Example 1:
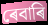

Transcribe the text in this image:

ৰেবাৰি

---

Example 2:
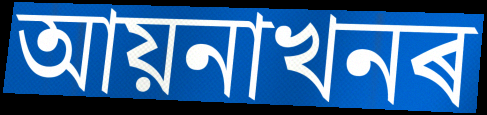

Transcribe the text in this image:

আয়নাখনৰ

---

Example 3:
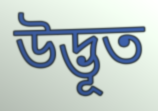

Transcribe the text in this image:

উদ্ভূত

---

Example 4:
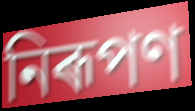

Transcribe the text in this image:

নিৰূপণ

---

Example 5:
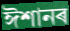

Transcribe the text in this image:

ঈশানৰ